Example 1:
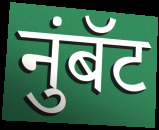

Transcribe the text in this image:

नुंबॅट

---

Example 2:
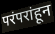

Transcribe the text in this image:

परंपरांहून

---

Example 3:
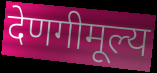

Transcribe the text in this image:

देणगीमूल्य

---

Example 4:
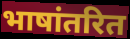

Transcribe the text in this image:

भाषांतरित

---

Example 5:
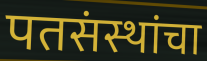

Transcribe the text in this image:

पतसंस्थांचा